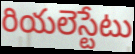
రియలెస్టేటు